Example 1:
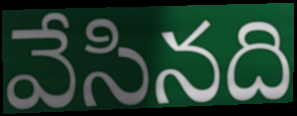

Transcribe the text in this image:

వేసినది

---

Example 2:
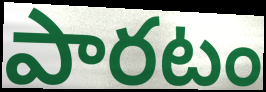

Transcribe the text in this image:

పారటం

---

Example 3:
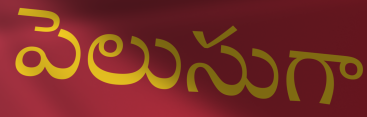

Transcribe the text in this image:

పెలుసుగా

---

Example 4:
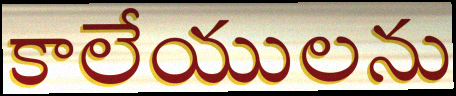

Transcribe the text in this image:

కాలేయులను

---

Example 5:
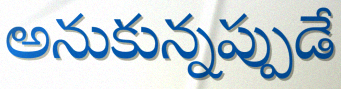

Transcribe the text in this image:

అనుకున్నప్పుడే